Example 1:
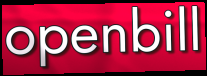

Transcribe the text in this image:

openbill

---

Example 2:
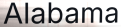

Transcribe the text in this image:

Alabama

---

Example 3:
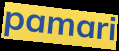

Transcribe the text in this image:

pamari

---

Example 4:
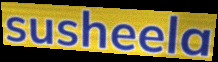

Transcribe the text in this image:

susheela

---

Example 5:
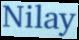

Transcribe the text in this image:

Nilay